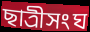
ছাত্রীসংঘ